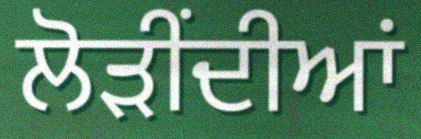
ਲੋੜੀਂਦੀਆਂ